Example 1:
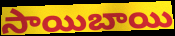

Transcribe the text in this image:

సాయిబాయి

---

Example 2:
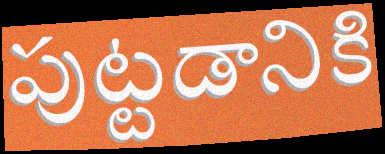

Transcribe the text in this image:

పుట్టడానికి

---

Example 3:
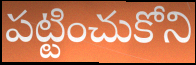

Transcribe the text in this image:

పట్టించుకోని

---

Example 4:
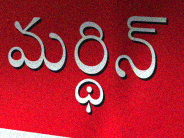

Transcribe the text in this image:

మర్థిన్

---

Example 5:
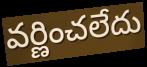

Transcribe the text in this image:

వర్ణించలేదు